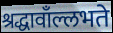
श्रद्धावाँल्लभते